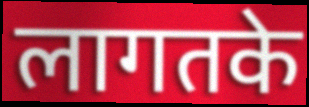
लागतके